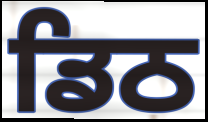
ਡਿਠ